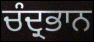
ਚੰਦ੍ਰਭਾਨ